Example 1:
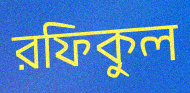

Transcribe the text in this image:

রফিকুল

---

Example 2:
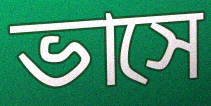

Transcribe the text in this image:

ভাসে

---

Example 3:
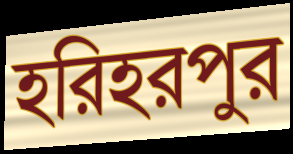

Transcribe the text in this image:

হরিহরপুর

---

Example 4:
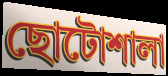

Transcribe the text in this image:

ছোটোশালা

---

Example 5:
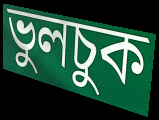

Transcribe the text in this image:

ভুলচুক